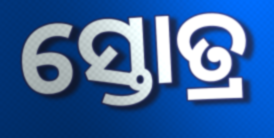
ସ୍ତୋତ୍ର